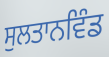
ਸੁਲਤਾਨਵਿੰਡ